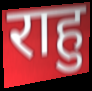
राहु